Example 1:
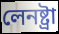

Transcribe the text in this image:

লেনষ্ট্ৰা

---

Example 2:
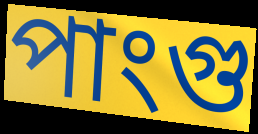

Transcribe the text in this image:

পাংগু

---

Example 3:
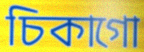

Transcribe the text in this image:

চিকাগো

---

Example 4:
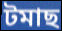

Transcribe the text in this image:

টমাছ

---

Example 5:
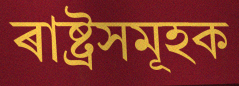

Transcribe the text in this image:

ৰাষ্ট্ৰসমূহক